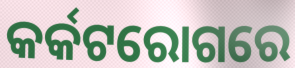
କର୍କଟରୋଗରେ